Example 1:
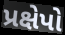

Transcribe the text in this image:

પ્રક્ષેપો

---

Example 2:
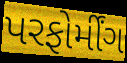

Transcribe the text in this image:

પરફોર્મીંગ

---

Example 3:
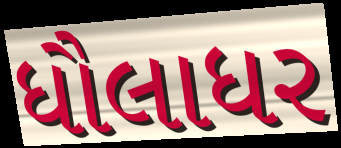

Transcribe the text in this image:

ધૌલાધર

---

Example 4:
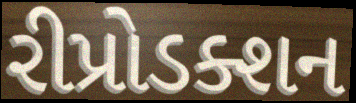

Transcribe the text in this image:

રીપ્રોડક્શન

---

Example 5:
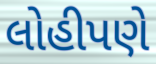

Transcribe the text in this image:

લોહીપણે